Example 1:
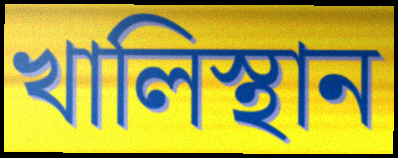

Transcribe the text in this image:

খালিস্থান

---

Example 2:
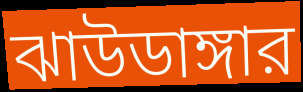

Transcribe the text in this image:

ঝাউডাঙ্গার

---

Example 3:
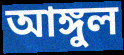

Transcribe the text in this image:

আঙ্গুল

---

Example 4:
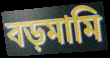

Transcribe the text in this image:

বড়মামি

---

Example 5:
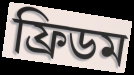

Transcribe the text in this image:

ফ্রিডম